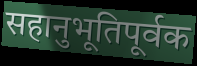
सहानुभूतिपूर्वक